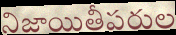
నిజాయితీపరుల